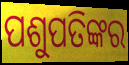
ପଶୁପତିଙ୍କର